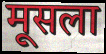
मूसला